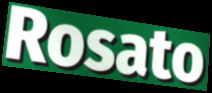
Rosato